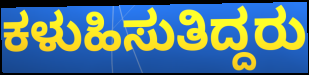
ಕಳುಹಿಸುತಿದ್ದರು